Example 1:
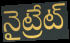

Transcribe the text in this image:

నైట్రేట్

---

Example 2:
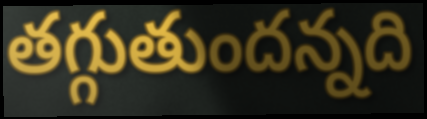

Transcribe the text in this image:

తగ్గుతుందన్నది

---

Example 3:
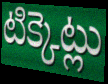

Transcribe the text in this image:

టిక్కెట్లు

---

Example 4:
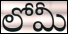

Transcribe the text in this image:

లోమీ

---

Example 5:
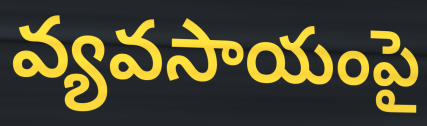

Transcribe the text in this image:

వ్యవసాయంపై